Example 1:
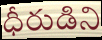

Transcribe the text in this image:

ధీరుడిని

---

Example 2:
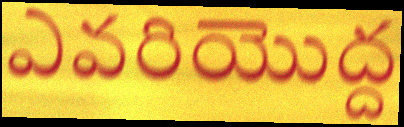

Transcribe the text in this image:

ఎవరియొద్ద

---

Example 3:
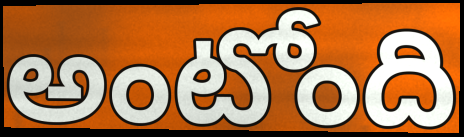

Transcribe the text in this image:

అంటోంది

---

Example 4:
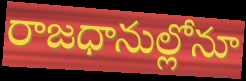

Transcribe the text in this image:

రాజధానుల్లోనూ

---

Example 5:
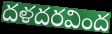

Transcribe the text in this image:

దళదరవింద